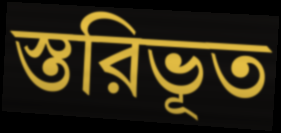
স্তরিভূত